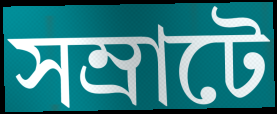
সম্ৰাটে